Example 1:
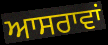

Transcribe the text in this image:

ਆਸਰਾਵਾਂ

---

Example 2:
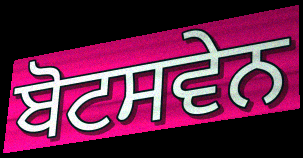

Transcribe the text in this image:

ਬੋਟਸਵੇਨ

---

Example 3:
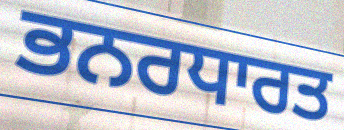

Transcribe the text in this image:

ਭਨਰਧਾਰਤ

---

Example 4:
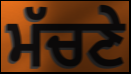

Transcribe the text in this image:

ਮੱਚਣੇ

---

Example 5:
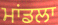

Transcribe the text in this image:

ਮਾਂਡਲਾ